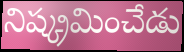
నిష్క్రమించేడు